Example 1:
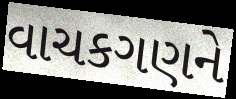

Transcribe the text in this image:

વાચકગણને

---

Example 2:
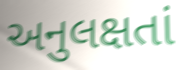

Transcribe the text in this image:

અનુલક્ષતાં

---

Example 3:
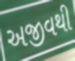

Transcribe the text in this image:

અજીવથી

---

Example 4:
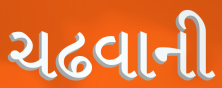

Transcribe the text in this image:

ચઢવાની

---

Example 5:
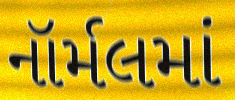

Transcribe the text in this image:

નૉર્મલમાં